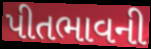
પીતભાવની